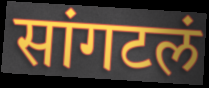
सांगटलं